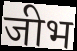
जीभ